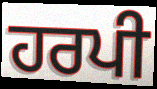
ਹਰਪੀ